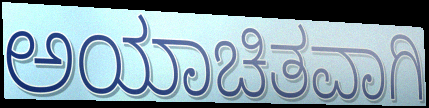
ಅಯಾಚಿತವಾಗಿ